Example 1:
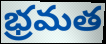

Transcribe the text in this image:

భ్రమత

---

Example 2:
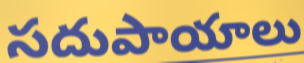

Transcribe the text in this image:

సదుపాయాలు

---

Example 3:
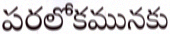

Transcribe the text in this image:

పరలోకమునకు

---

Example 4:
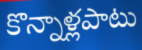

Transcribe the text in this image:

కొన్నాళ్లపాటు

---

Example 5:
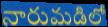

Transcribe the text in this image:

నారుమడిలో